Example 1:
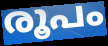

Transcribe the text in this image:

രൂപം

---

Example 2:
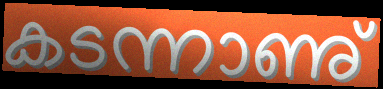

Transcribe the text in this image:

കടന്നാണു്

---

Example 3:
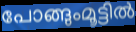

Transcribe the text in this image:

പോങ്ങുംമൂട്ടിൽ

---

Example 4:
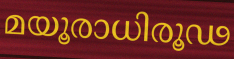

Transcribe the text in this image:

മയൂരാധിരൂഢ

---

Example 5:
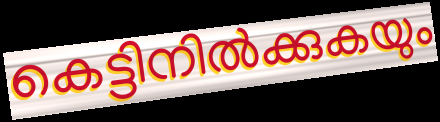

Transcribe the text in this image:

കെട്ടിനിൽക്കുകയും